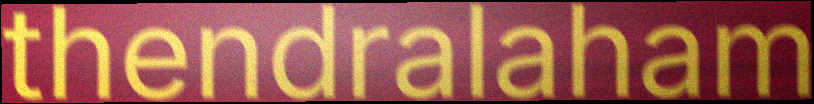
thendralaham